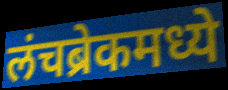
लंचब्रेकमध्ये